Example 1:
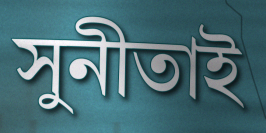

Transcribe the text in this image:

সুনীতাই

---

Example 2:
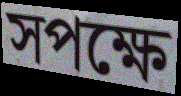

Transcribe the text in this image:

সপক্ষে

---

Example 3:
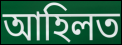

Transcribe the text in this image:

আহিলত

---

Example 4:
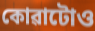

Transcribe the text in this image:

কোৱাটোও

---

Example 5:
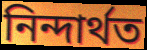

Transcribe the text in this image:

নিন্দাৰ্থত